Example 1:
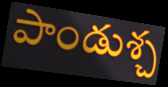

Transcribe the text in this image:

పాండుశ్చ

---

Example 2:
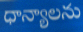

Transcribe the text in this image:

ధాన్యాలను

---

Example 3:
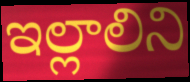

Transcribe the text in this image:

ఇల్లాలిని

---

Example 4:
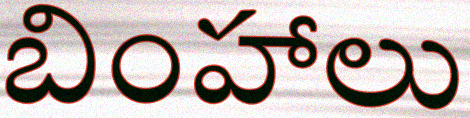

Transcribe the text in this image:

బింహాలు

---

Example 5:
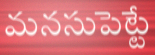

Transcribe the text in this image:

మనసుపెట్టే